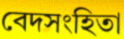
বেদসংহিতা